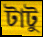
টাটু